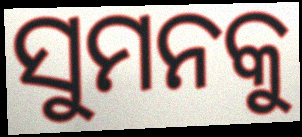
ସୁମନକୁ